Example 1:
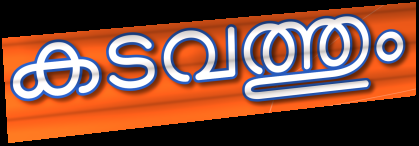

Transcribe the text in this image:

കടവത്തും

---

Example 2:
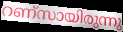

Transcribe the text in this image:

റണ്സായിരുന്നു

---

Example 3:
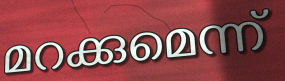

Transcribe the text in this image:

മറക്കുമെന്ന്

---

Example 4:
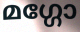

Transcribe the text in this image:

മഗ്ഗോ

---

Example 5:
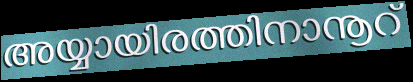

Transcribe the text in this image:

അയ്യായിരത്തിനാനൂറ്